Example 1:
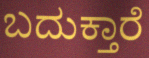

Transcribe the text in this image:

ಬದುಕ್ತಾರೆ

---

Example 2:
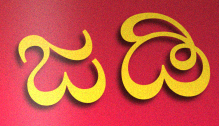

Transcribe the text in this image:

ಜಡಿ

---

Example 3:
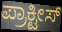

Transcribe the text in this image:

ಪ್ರಾಕ್ಟೀಸ್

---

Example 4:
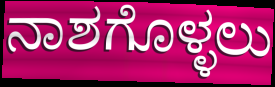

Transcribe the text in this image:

ನಾಶಗೊಳ್ಳಲು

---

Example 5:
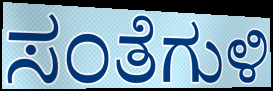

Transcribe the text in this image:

ಸಂತೆಗುಳಿ